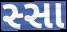
સ્સા